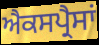
ਐਕਸਪ੍ਰੈਸਾਂ